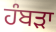
ਹੰਬਡ਼ਾ